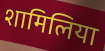
शामिलिया